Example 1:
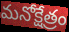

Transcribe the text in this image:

మనోక్షేత్రం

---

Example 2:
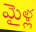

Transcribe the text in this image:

మైళ్ల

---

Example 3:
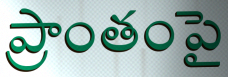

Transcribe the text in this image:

ప్రాంతంపై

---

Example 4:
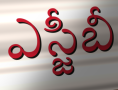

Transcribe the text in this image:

ఎస్జీబీ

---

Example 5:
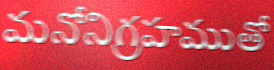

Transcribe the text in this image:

మనోనిగ్రహముతో